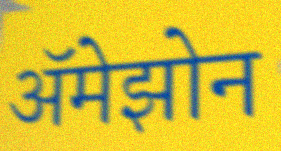
ॲमेझोन